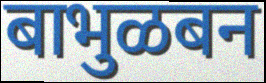
बाभुळबन